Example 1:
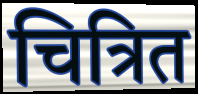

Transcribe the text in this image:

चित्रित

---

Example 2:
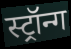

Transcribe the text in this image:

स्ट्रॉन्ग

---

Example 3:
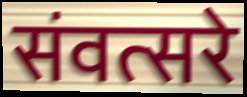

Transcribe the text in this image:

संवत्सरे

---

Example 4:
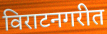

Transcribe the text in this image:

विराटनगरीत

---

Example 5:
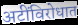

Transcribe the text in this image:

अटींविरोधात